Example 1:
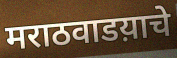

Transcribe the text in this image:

मराठवाडय़ाचे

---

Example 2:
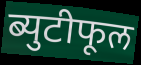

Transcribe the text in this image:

ब्युटीफूल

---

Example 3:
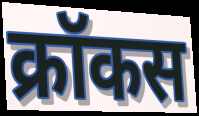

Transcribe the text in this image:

क्रॉकस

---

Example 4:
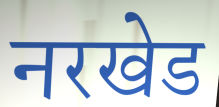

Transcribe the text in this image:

नरखेड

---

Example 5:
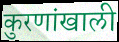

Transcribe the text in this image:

कुरणांखाली